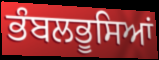
ਭੰਬਲਭੂਸਿਆਂ